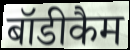
बॉडीकैम